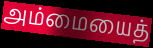
அம்மையைத்